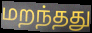
மறந்தது